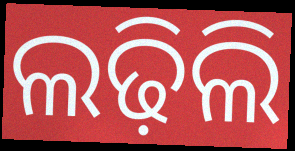
ଲଢ଼ିଲି